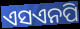
ଏସଏନପି